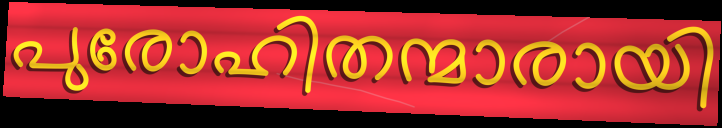
പുരോഹിതന്മാരായി